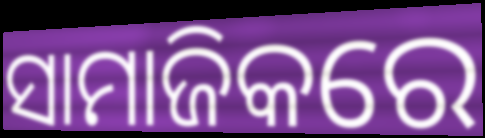
ସାମାଜିକରେ